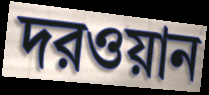
দরওয়ান